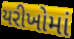
યરીખોમાં